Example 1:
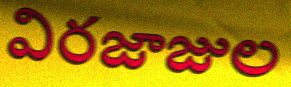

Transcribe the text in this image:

విరజాజుల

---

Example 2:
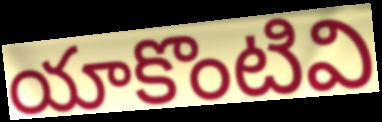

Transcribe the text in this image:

యాకొంటివి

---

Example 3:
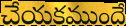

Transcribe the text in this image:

చేయకముందే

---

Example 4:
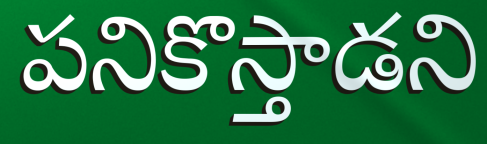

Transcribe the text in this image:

పనికొస్తాడని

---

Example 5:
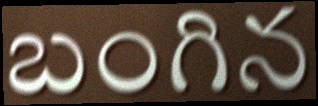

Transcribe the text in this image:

బంగిన